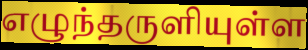
எழுந்தருளியுள்ள